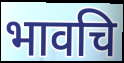
भावचि